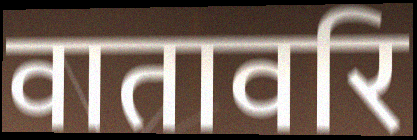
वातावरि